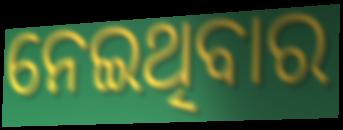
ନେଇଥିବାର